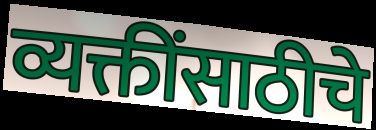
व्यक्तींसाठीचे